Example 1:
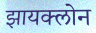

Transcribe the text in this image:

झायक्लोन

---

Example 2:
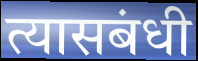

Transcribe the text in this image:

त्यासबंधी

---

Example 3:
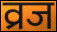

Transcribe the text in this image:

व्रज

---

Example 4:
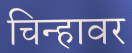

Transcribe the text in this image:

चिन्हावर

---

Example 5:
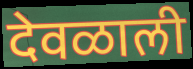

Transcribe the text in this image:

देवळाली